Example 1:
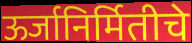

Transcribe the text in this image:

ऊर्जानिर्मितीचे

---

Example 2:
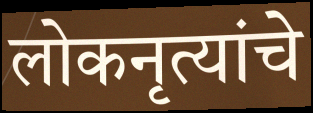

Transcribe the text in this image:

लोकनृत्यांचे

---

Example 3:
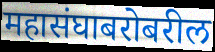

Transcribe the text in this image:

महासंघाबरोबरील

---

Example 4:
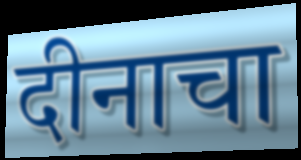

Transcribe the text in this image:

दीनाचा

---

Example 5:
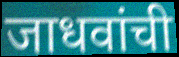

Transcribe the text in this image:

जाधवांची